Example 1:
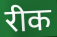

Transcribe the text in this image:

रीक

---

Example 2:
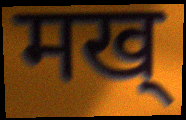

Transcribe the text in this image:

मख्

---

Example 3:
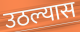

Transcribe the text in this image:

उठल्यास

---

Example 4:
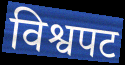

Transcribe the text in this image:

विश्वपट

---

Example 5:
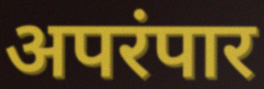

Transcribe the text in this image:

अपरंपार